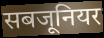
सबजूनियर